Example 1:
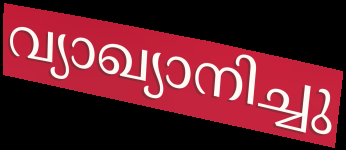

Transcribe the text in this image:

വ്യാഖ്യാനിച്ചു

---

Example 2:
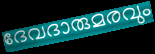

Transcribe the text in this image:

ദേവദാരുമരവും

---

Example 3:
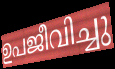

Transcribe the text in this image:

ഉപജീവിച്ചു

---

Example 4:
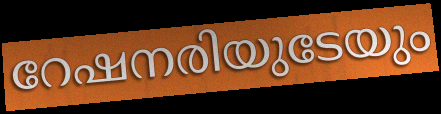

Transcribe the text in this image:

റേഷനരിയുടേയും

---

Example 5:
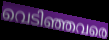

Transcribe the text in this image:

വെടിഞ്ഞവരെ